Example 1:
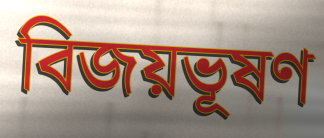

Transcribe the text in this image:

বিজয়ভূষণ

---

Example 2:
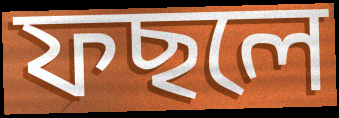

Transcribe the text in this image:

ফছলে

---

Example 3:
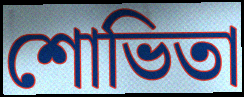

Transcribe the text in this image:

শোভিতা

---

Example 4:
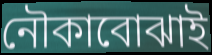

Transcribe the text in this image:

নৌকাবোঝাই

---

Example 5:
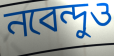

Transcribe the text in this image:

নবেন্দুও